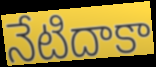
నేటిదాకా